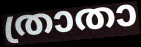
ത്രാതാ